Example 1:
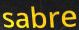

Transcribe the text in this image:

sabre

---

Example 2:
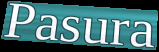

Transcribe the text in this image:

Pasura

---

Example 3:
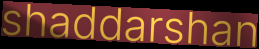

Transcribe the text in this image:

shaddarshan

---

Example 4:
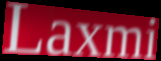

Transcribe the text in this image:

Laxmi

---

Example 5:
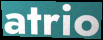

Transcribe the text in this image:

atrio